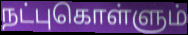
நட்புகொள்ளும்